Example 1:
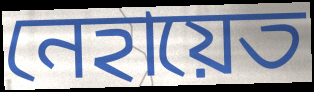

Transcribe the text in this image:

নেহায়েত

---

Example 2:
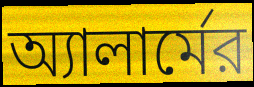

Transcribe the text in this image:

অ্যালার্মের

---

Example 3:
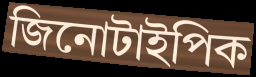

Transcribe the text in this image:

জিনোটাইপিক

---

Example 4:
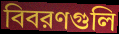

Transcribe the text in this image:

বিবরণগুলি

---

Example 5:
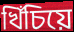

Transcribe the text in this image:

খিঁচিয়ে